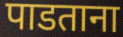
पाडताना